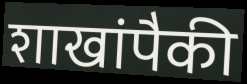
शाखांपैकी